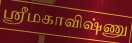
ஸ்ரீமகாவிஷ்ணு